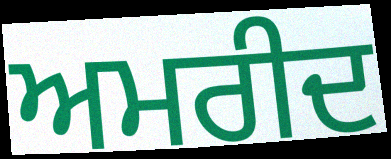
ਅਮਰੀਦ